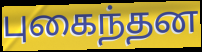
புகைந்தன